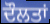
ਦੌਲਤਾਂ